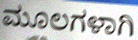
ಮೂಲಗಳಾಗಿ